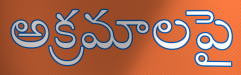
అక్రమాలపై